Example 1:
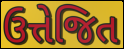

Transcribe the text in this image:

ઉત્તેજિત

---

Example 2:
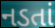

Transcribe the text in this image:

નડતાં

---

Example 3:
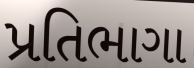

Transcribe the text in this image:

પ્રતિભાગા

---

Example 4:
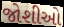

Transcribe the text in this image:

જોશીઓ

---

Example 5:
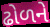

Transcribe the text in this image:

ઢોળને